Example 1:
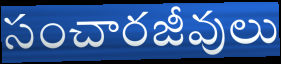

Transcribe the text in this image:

సంచారజీవులు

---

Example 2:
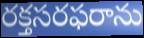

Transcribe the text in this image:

రక్తసరఫరాను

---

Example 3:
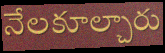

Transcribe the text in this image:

నేలకూల్చారు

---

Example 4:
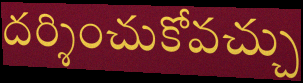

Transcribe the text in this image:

దర్శించుకోవచ్చు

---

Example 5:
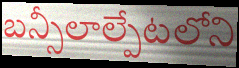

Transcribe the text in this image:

బన్సీలాల్పేటలోని